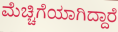
ಮೆಚ್ಚಿಗೆಯಾಗಿದ್ದಾರೆ